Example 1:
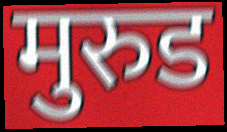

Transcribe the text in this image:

मुरुड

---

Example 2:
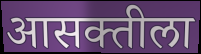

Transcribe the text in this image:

आसक्तीला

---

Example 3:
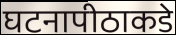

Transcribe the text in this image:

घटनापीठाकडे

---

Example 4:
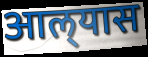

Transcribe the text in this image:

आल्यास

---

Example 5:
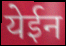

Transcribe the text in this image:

येईन